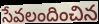
సేవలందించిన